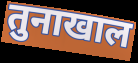
तुनाखाल